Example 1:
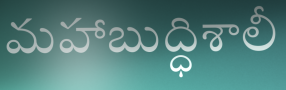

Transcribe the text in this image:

మహాబుద్ధిశాలీ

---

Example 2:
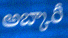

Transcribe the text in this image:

అబ్కారీ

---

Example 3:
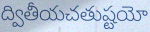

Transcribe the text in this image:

ద్వితీయచతుష్టయో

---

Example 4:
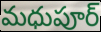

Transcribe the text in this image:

మధుపూర్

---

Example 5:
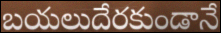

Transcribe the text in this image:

బయలుదేరకుండానే